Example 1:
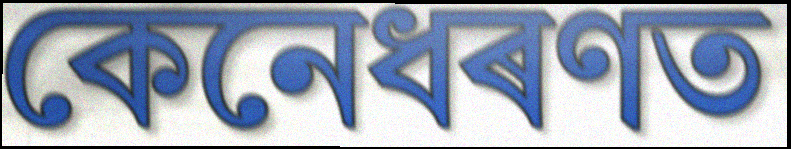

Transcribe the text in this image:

কেনেধৰণত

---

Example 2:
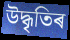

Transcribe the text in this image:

উদ্ধৃতিৰ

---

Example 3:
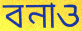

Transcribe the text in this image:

বনাও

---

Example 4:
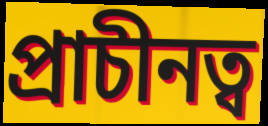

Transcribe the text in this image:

প্ৰাচীনত্ব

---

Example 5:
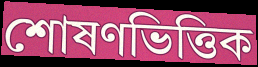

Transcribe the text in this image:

শোষণভিত্তিক